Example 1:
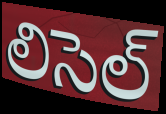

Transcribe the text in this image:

లిసెల్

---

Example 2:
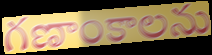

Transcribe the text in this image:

గణాంకాలను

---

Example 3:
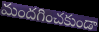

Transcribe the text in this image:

మందగించకుండా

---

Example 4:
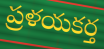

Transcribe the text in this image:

ప్రళయకర్త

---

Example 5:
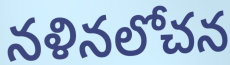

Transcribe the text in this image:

నళినలోచన